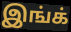
இங்க்